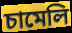
চামেলি